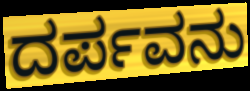
ದರ್ಪವನು